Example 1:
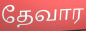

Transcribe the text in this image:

தேவார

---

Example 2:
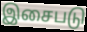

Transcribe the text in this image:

இசைபடு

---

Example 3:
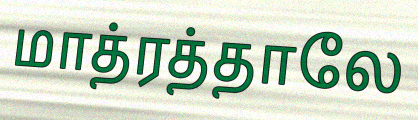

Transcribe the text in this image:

மாத்ரத்தாலே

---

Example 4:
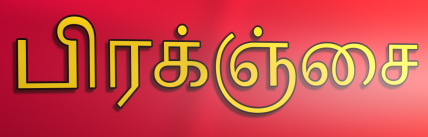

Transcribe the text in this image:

பிரக்ஞ்சை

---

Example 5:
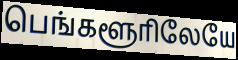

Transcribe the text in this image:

பெங்களூரிலேயே